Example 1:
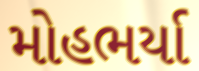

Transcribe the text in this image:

મોહભર્યા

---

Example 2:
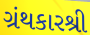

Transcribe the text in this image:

ગ્રંથકારશ્રી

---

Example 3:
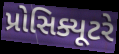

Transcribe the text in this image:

પ્રોસિક્યૂટરે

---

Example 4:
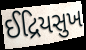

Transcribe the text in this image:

ઈદ્રિયસુખ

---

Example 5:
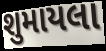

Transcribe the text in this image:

શુમાયલા